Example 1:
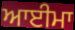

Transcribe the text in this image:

ਆਈਮਾ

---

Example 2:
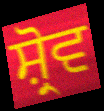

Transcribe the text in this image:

ਸ਼੍ਰੋਵ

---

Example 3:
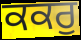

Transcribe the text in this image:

ਕਕਰੁ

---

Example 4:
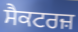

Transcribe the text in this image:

ਸੈਕਟਰਜ਼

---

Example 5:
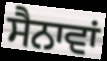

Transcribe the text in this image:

ਸੈਨਾਵਾਂ